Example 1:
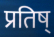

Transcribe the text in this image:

प्रतिष्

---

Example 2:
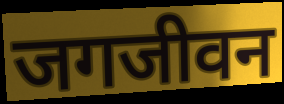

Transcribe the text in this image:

जगजीवन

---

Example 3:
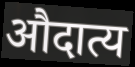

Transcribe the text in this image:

औदात्य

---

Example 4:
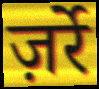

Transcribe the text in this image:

ज़र्रे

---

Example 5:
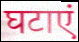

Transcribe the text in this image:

घटाएं